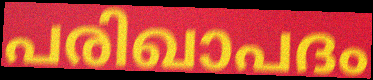
പരിഖാപദം